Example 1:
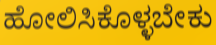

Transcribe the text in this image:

ಹೋಲಿಸಿಕೊಳ್ಳಬೇಕು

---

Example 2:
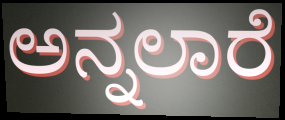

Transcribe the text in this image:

ಅನ್ನಲಾರೆ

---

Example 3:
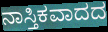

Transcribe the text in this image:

ನಾಸ್ತಿಕವಾದದ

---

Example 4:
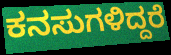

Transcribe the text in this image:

ಕನಸುಗಳಿದ್ದರೆ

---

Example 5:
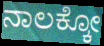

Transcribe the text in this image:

ನಾಲಕ್ಕೋ